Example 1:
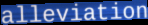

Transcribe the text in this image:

alleviation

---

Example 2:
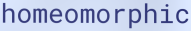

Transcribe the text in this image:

homeomorphic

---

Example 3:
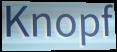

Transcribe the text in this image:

Knopf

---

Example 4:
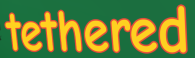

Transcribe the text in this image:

tethered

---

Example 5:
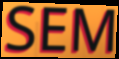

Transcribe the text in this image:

SEM